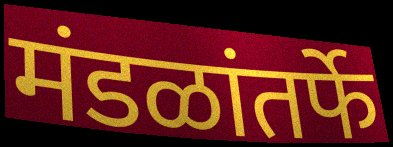
मंडळांतर्फे